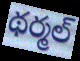
థర్మల్